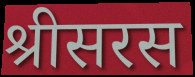
श्रीसरस